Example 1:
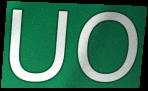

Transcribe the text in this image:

UO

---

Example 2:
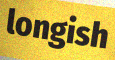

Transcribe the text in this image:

longish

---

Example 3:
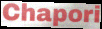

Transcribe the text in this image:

Chapori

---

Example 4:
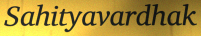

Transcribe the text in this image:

Sahityavardhak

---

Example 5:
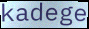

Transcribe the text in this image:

kadege